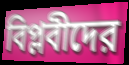
বিপ্লবীদের